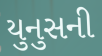
યુનુસની